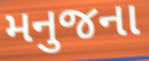
મનુજના